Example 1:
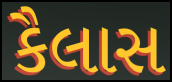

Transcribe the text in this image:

કૈલાસ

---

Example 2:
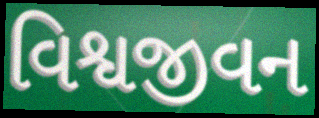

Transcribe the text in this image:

વિશ્વજીવન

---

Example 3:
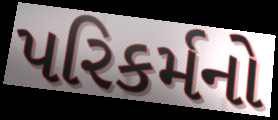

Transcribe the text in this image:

પરિકર્મનો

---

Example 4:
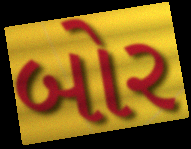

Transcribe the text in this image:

બોર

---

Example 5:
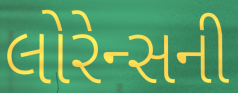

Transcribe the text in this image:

લોરેન્સની